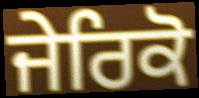
ਜੇਰਿਕੋ